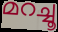
മറച്ചൂ